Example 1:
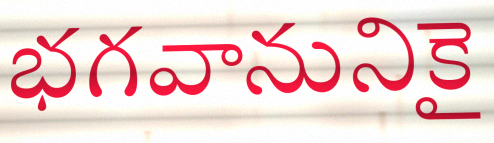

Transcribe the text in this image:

భగవానునికై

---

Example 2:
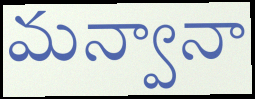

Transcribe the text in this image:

మన్వానా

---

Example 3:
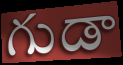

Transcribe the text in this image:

గుడా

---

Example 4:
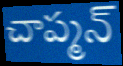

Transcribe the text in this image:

చాప్మన్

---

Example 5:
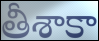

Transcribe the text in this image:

తీశాకా